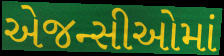
એજન્સીઓમાં